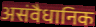
असंवैधानिक